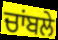
ਚਾਂਬਲੇ